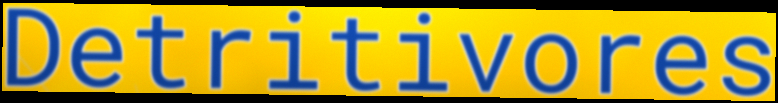
Detritivores